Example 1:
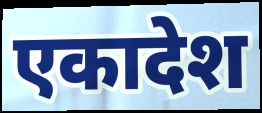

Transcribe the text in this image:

एकादेश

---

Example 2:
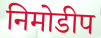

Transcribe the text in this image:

निमोडीप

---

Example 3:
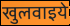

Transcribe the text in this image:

खुलवाइये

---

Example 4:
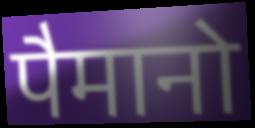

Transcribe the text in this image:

पैमानो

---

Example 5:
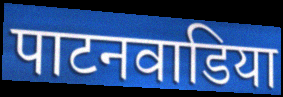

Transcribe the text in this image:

पाटनवाडिया